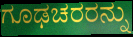
ಗೂಢಚರರನ್ನು